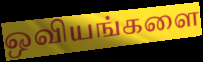
ஒவியங்களை